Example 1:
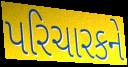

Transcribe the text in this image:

પરિચારકને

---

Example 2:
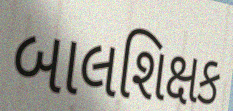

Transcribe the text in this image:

બાલશિક્ષક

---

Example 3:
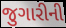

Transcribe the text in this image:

જુગારીની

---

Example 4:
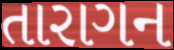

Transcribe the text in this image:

તારાગન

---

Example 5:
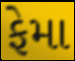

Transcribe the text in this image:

ફેમા